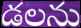
డలను